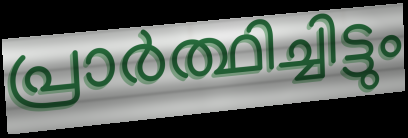
പ്രാർത്ഥിച്ചിട്ടും